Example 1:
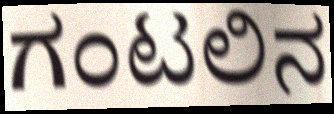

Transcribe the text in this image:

ಗಂಟಲಿನ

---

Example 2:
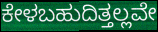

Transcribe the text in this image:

ಕೇಳಬಹುದಿತ್ತಲ್ಲವೇ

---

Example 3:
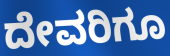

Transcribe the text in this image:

ದೇವರಿಗೂ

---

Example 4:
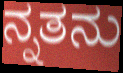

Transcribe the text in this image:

ನ್ನತನು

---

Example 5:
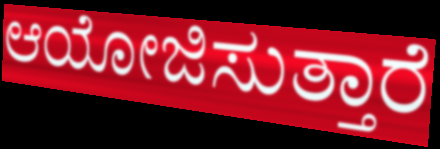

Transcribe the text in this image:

ಆಯೋಜಿಸುತ್ತಾರೆ